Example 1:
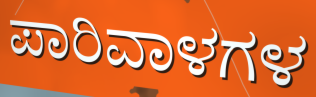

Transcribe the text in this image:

ಪಾರಿವಾಳಗಳ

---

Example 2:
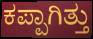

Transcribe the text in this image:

ಕಪ್ಪಾಗಿತ್ತು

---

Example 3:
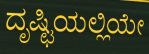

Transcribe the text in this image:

ದೃಷ್ಟಿಯಲ್ಲಿಯೇ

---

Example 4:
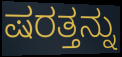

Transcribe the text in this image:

ಷರತ್ತನ್ನು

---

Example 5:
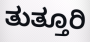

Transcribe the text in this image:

ತುತ್ತೂರಿ